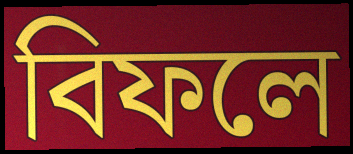
বিফলে